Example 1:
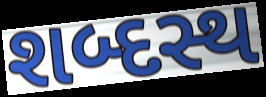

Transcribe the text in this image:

શબ્દસ્થ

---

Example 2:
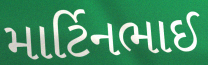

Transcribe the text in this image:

માર્ટિનભાઈ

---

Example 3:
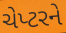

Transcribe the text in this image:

ચેપ્ટરને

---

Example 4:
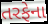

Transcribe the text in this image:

તરફેના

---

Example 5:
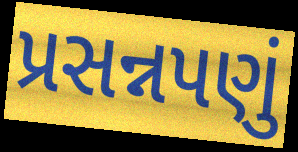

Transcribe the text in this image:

પ્રસન્નપણું